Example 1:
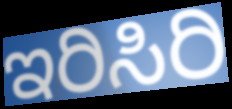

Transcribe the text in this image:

ಇರಿಸಿರಿ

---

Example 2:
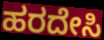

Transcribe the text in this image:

ಹರದೇಸಿ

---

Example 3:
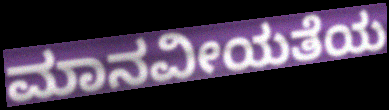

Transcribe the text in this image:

ಮಾನವೀಯತೆಯ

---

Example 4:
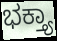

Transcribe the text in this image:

ಭಕ್ತ್ಯಾ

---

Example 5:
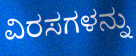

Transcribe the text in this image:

ವಿರಸಗಳನ್ನು